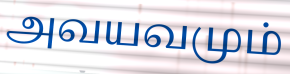
அவயவமும்